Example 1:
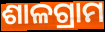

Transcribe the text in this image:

ଶାଳଗ୍ରାମ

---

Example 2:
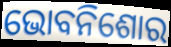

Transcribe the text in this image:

ଭୋବନିଶୋର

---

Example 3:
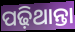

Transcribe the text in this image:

ପଢ଼ିଥାନ୍ତା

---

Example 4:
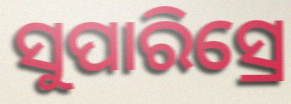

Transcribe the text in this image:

ସୁପାରିସ୍ରେ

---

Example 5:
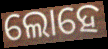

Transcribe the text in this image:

ଲୋହେ